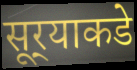
सूर्याकडे